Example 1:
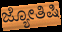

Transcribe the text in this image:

ಜ್ಯೋತಿಷಿ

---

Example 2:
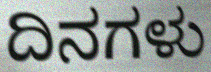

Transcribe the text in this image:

ದಿನಗಳು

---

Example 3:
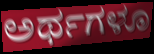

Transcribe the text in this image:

ಅರ್ಥಗಳೂ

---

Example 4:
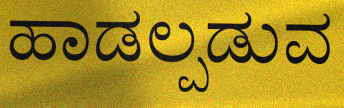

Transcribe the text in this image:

ಹಾಡಲ್ಪಡುವ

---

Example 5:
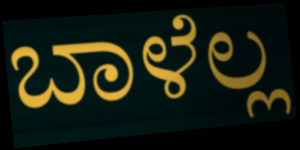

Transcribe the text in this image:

ಬಾಳೆಲ್ಲ